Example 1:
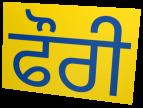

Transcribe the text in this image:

ਫੌਰੀ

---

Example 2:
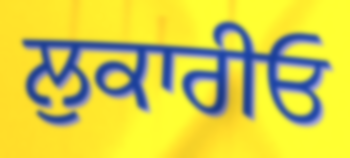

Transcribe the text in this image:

ਲੁਕਾਰੀਓ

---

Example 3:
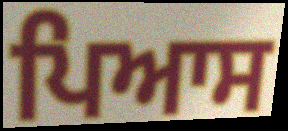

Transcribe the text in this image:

ਪਿਆਸ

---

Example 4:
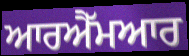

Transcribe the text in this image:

ਆਰਐੱਮਆਰ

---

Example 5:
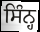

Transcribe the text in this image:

ਸਿੰਨ੍ਹ